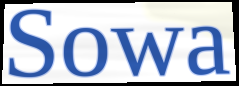
Sowa